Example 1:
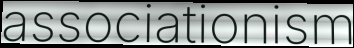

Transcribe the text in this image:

associationism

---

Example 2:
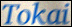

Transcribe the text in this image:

Tokai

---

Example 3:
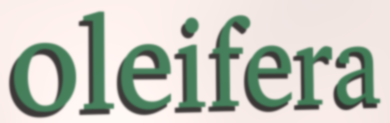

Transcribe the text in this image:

oleifera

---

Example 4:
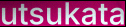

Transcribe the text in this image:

utsukata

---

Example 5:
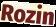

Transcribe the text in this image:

Rozin